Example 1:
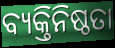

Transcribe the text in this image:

ବ୍ୟକ୍ତିନିଷ୍ଠତା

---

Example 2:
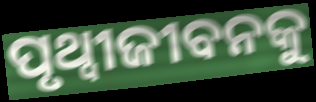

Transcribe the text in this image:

ପୃଥ୍ୱୀଜୀବନକୁ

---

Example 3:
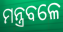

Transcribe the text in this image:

ମନ୍ତ୍ରବଳେ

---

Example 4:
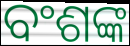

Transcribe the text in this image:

ବଂଶଙ୍କ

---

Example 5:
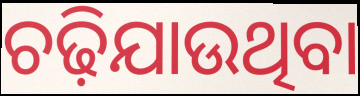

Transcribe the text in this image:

ଚଢ଼ିଯାଉଥିବା